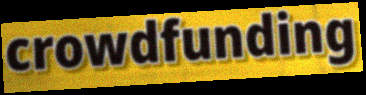
crowdfunding